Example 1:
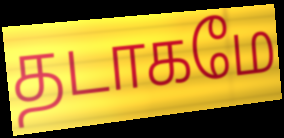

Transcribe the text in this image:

தடாகமே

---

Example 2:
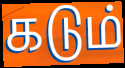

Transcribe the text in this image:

கடும்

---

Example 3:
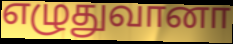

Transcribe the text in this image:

எழுதுவானா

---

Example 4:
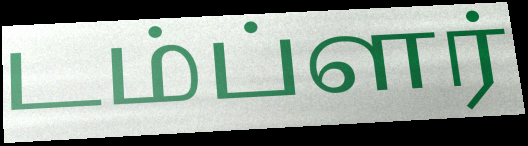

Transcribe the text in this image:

டம்ப்ளர்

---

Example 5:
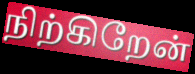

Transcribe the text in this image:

நிற்கிறேன்